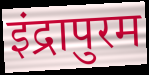
इंद्रापुरम